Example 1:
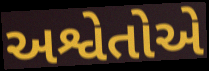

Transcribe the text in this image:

અશ્વેતોએ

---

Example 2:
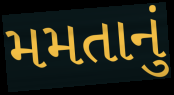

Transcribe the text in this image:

મમતાનું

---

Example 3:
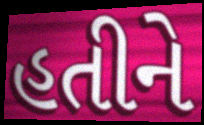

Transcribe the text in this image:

હતીને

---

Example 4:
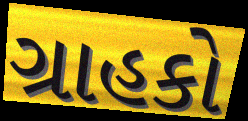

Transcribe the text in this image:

ગ્રાહકો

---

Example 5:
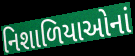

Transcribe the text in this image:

નિશાળિયાઓનાં